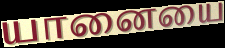
யானையை